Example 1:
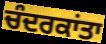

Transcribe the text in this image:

ਚੰਦਰਕਾਂਤਾ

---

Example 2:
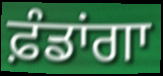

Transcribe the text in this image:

ਫ਼ੰਡਾਂਗਾ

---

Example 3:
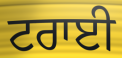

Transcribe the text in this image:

ਟਰਾਈ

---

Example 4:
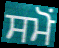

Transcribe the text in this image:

ਸਮੋਂ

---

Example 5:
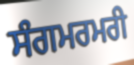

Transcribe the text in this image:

ਸੰਗਮਰਮਰੀ